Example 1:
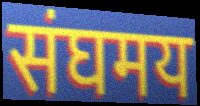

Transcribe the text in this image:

संघमय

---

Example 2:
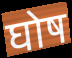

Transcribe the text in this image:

घोष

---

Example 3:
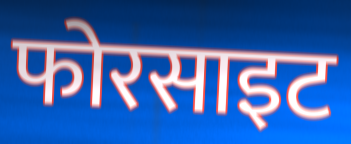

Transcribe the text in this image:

फोरसाइट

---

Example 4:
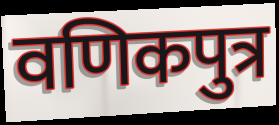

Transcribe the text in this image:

वणिकपुत्र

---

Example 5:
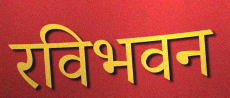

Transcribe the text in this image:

रविभवन